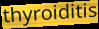
thyroiditis